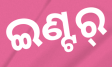
ଇଣ୍ଟର୍